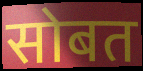
सोबत